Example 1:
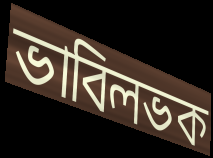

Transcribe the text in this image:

ভাবিলভক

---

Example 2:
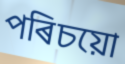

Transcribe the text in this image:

পৰিচয়ো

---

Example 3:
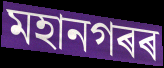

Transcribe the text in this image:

মহানগৰৰ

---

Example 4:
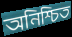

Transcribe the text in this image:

অনিশ্চিত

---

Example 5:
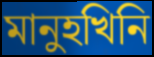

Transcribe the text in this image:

মানুহখিনি